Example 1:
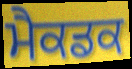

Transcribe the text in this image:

ਮੈਕਡਕ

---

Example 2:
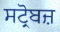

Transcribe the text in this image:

ਸਟ੍ਰੋਬਜ਼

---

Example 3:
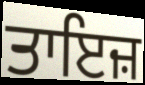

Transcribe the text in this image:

ਤਾਇਜ਼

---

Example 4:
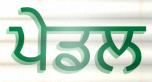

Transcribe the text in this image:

ਪੇਡਲ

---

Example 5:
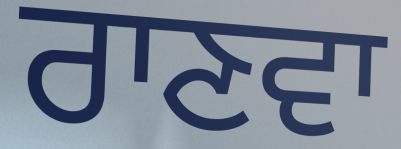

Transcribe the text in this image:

ਰਾਣਵਾ